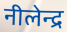
नीलेन्द्र